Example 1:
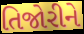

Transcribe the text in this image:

તિજોરીને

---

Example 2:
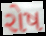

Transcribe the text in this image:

રોષ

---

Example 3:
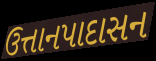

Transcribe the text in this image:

ઉત્તાનપાદાસન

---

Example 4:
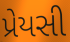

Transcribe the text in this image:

પ્રેયસી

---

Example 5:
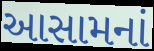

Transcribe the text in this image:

આસામનાં